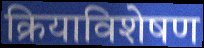
क्रियाविशेषण